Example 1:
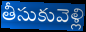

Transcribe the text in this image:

తీసుకువెళ్లి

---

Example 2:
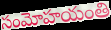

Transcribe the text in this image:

సంమోహయంతి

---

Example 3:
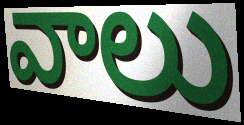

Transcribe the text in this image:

వాలు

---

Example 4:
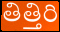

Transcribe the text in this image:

తిత్తిరి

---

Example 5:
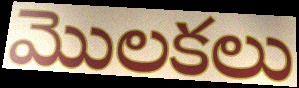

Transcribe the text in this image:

మొలకలు